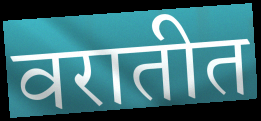
वरातीत